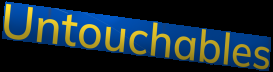
Untouchables